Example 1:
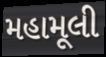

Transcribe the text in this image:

મહામૂલી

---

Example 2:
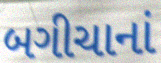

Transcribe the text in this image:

બગીચાનાં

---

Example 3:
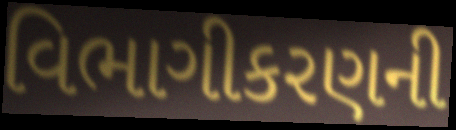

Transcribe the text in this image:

વિભાગીકરણની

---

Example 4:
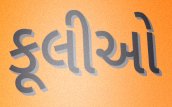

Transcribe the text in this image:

કૂલીઓ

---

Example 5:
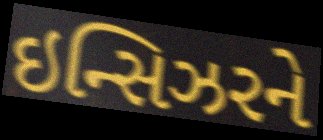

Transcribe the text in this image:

ઇન્સિઝરને